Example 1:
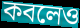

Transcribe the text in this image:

কবলেও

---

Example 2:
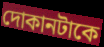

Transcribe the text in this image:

দোকানটাকে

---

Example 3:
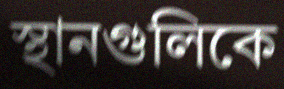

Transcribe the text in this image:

স্থানগুলিকে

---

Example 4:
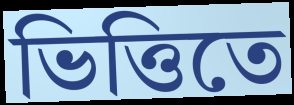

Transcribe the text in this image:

ভিত্তিতে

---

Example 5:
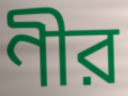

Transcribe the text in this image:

ণীর